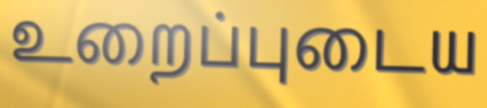
உறைப்புடைய